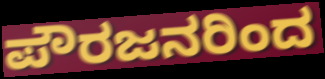
ಪೌರಜನರಿಂದ